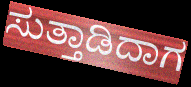
ಸುತ್ತಾಡಿದಾಗ